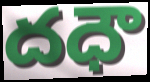
దధౌ